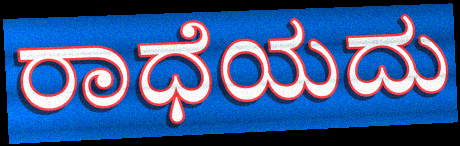
ರಾಧೆಯದು